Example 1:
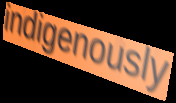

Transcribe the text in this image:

indigenously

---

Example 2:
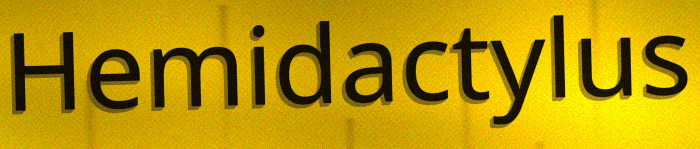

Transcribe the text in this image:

Hemidactylus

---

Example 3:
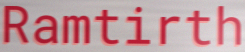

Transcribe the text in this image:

Ramtirth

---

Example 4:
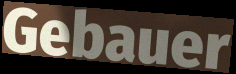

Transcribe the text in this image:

Gebauer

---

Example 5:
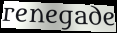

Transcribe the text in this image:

renegade